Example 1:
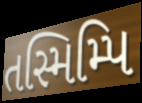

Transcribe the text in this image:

તસ્મિમ્પિ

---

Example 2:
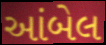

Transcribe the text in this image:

આંબેલ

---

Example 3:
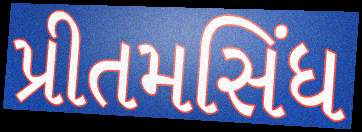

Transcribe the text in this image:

પ્રીતમસિંધ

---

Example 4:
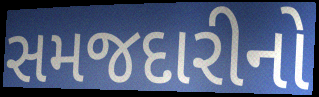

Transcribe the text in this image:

સમજદારીનો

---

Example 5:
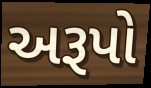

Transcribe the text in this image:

અરૂપો